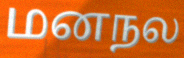
மனநல